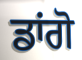
ਡਾਂਗੋ